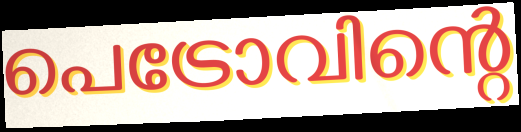
പെട്രോവിന്റെ